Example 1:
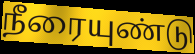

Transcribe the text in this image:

நீரையுண்டு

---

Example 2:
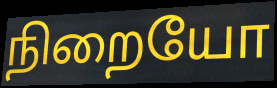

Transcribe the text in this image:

நிறையோ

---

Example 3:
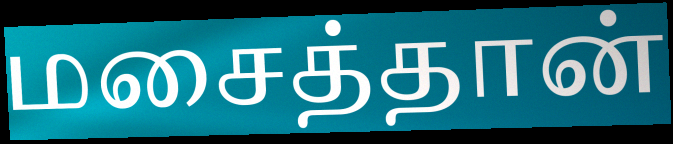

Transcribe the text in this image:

மசைத்தான்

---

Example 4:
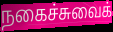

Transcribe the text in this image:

நகைச்சுவைக்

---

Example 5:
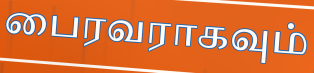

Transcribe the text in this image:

பைரவராகவும்